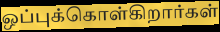
ஒப்புக்கொள்கிறார்கள்